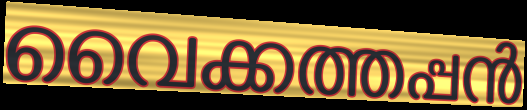
വൈക്കത്തപ്പൻ